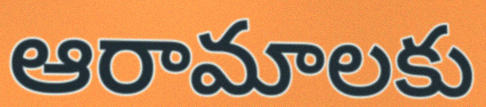
ఆరామాలకు